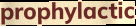
prophylactic